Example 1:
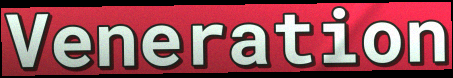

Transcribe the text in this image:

Veneration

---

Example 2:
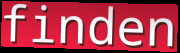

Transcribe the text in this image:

finden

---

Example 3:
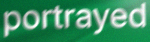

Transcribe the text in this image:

portrayed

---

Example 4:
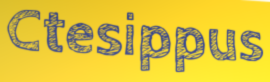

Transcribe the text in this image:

Ctesippus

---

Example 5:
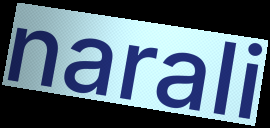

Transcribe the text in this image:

narali